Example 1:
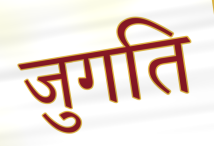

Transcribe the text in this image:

जुगति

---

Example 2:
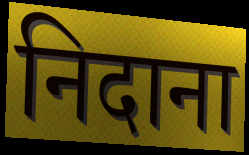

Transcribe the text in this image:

निदाना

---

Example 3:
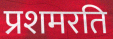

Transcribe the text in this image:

प्रशमरति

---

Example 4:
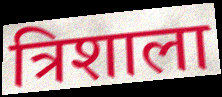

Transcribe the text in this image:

त्रिशाला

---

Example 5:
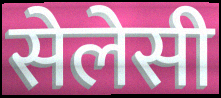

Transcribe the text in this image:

सेलेसी